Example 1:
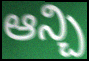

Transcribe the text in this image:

ఆన్చి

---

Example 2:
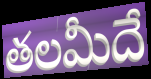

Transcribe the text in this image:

తలమీదే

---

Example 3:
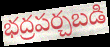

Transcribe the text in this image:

భద్రపర్చబడి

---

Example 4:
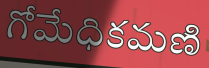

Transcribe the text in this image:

గోమేధికమణి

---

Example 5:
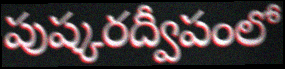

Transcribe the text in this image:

పుష్కరద్వీపంలో